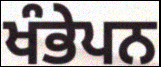
ਖੰਭੇਪਨ